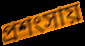
প্রশংসায়